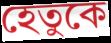
হেতুকে